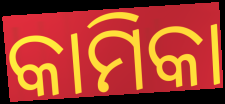
କାମିକା